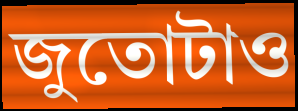
জুতোটাও